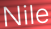
Nile